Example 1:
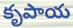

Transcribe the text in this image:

కృపాయ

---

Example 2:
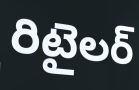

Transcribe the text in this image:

రిటైలర్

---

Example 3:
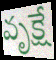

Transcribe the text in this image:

వృక్షే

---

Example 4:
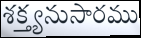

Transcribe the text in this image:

శక్త్యనుసారము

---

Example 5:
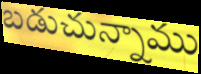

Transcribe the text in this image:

బడుచున్నాము